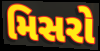
મિસરો